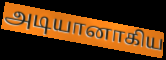
அடியானாகிய